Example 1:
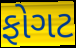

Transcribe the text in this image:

ફોગટ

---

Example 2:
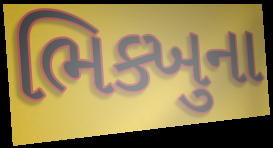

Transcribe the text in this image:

ભિક્ખુના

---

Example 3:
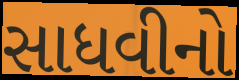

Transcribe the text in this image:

સાધવીનો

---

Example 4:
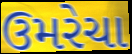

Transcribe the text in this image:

ઉમરેચા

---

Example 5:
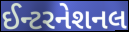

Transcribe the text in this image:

ઈન્ટરનેશનલ